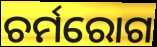
ଚର୍ମରୋଗ